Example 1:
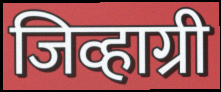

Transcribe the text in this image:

जिव्हाग्री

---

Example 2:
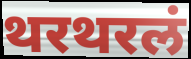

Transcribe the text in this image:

थरथरलं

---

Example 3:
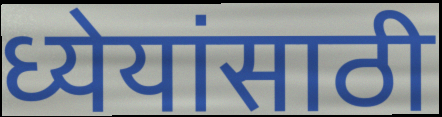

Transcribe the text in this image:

ध्येयांसाठी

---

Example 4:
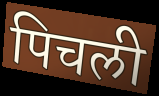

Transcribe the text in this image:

पिचली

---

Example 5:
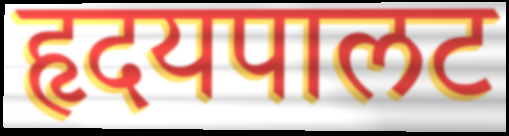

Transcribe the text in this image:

हृदयपालट